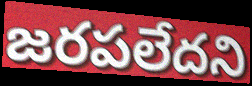
జరపలేదని